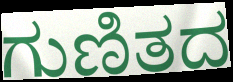
ಗುಣಿತದ